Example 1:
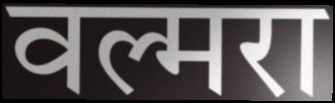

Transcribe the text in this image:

वल्मरा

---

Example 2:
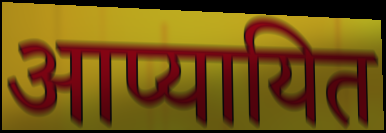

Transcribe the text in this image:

आप्यायित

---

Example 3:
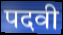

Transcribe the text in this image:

पदवी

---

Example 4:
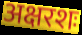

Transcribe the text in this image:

अक्षरशः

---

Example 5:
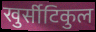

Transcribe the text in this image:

खुर्सीटिकुल